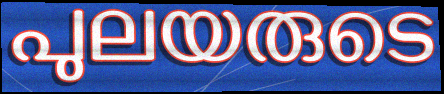
പുലയരുടെ